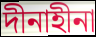
দীনাহীনা